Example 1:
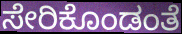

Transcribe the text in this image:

ಸೇರಿಕೊಂಡಂತೆ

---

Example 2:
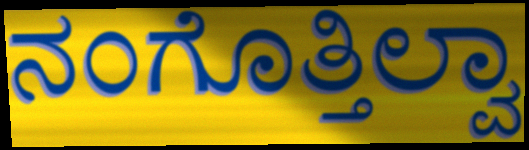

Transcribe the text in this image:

ನಂಗೊತ್ತಿಲ್ವಾ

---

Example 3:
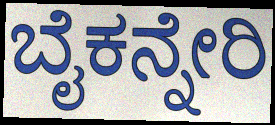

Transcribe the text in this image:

ಬೈಕನ್ನೇರಿ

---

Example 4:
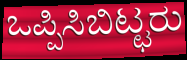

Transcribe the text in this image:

ಒಪ್ಪಿಸಿಬಿಟ್ಟರು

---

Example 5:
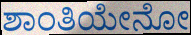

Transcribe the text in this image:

ಶಾಂತಿಯೇನೋ